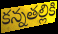
కన్నతల్లికి